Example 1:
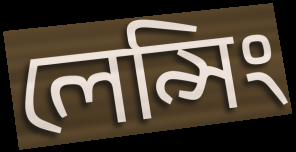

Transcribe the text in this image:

লেন্সিং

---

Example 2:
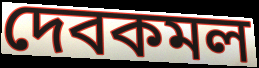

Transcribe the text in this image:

দেবকমল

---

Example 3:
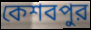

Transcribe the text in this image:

কেশবপুর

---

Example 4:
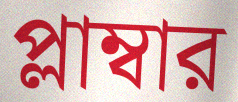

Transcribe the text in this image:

প্লাম্বার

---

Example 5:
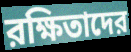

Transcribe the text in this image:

রক্ষিতাদের